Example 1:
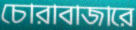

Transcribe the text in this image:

চোরাবাজারে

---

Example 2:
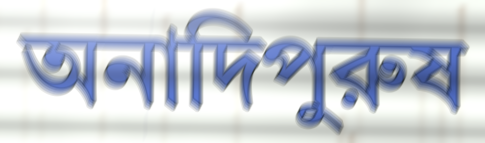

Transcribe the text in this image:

অনাদিপুরুষ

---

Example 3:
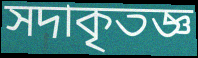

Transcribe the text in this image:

সদাকৃতজ্ঞ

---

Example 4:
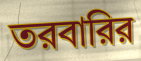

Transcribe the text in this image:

তরবারির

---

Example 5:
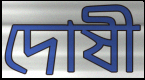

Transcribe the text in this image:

দোষী